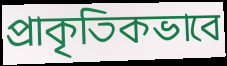
প্রাকৃতিকভাবে